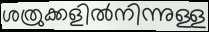
ശത്രുക്കളിൽനിന്നുള്ള